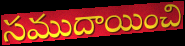
సముదాయించి